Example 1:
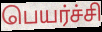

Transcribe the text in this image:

பெயர்ச்சி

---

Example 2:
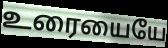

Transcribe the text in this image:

உரையையே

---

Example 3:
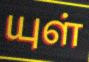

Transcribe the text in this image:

யுள்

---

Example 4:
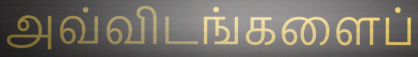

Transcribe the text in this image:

அவ்விடங்களைப்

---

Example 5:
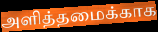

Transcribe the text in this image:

அளித்தமைக்காக